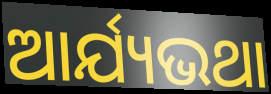
ଆର୍ଯ୍ୟଭଥା